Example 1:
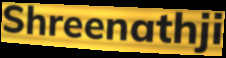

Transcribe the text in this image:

Shreenathji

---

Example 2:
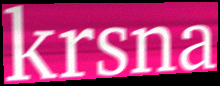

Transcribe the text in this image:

krsna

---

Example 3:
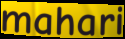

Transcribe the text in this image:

mahari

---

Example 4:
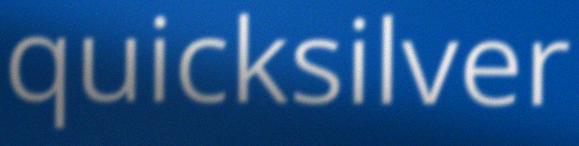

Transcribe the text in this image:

quicksilver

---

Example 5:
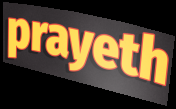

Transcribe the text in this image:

prayeth